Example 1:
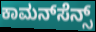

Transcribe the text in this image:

ಕಾಮನ್‌ಸೆನ್ಸ್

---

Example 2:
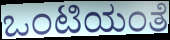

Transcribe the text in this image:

ಒಂಟಿಯಂತೆ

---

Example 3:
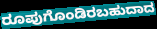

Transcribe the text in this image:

ರೂಪುಗೊಂಡಿರಬಹುದಾದ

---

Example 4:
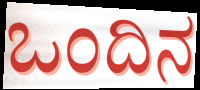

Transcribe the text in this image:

ಒಂದಿನ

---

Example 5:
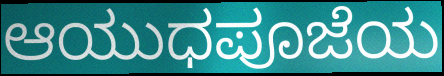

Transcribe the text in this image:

ಆಯುಧಪೂಜೆಯ